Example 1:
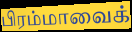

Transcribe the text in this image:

பிரம்மாவைக்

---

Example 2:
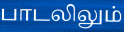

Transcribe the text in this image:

பாடலிலும்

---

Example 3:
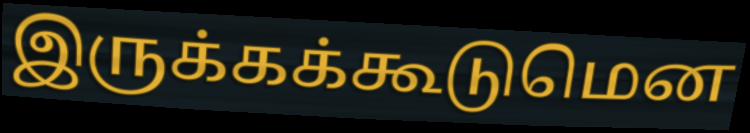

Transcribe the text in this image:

இருக்கக்கூடுமென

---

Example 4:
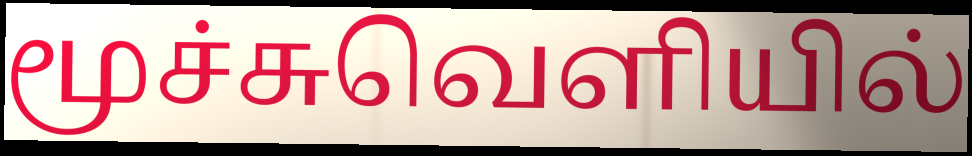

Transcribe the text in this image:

மூச்சுவெளியில்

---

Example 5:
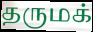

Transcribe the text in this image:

தருமக்